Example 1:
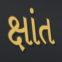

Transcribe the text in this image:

ક્ષાંત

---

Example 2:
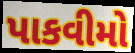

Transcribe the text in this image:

પાકવીમો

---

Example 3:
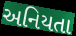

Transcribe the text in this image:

અનિયતા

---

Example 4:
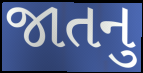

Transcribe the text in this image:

જાતનુ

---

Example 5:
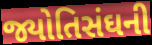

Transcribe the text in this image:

જ્યોતિસંઘની